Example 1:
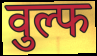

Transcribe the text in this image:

वुल्फ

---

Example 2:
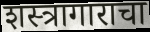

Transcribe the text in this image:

शस्त्रागाराचा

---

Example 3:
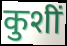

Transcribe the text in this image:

कुशीं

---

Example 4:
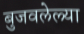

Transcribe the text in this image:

बुजवलेल्या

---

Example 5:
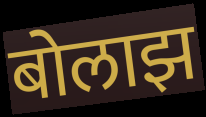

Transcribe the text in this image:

बोलाझ